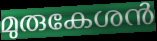
മുരുകേശൻ